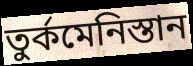
তুৰ্কমেনিস্তান